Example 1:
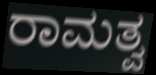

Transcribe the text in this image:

ರಾಮತ್ವ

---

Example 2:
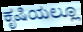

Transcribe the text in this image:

ಕೃಷಿಯಲ್ಲೂ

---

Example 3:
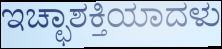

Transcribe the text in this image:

ಇಚ್ಛಾಶಕ್ತಿಯಾದಳು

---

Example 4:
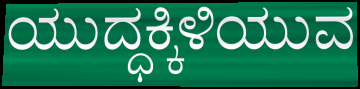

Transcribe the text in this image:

ಯುದ್ಧಕ್ಕಿಳಿಯುವ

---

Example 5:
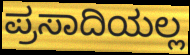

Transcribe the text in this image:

ಪ್ರಸಾದಿಯಲ್ಲ